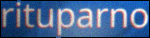
rituparno